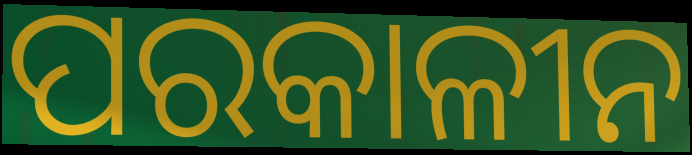
ପରକାଳୀନ